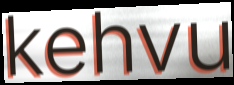
kehvu